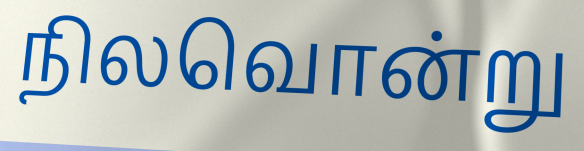
நிலவொன்று